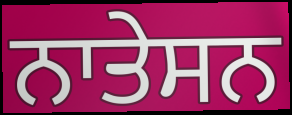
ਨਾਤੇਸਨ